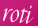
roti